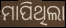
ମାପିଥିଲା